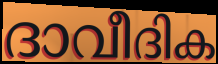
ദാവീദിക